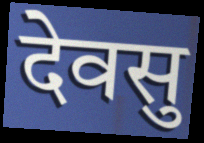
देवसु